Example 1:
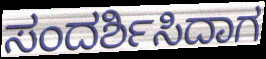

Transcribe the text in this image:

ಸಂದರ್ಶಿಸಿದಾಗ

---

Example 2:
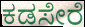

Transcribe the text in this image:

ಕಡಸೇರೆ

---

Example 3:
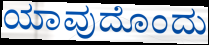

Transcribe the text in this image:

ಯಾವುದೊಂದು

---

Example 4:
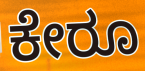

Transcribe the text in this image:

ಕೇರೂ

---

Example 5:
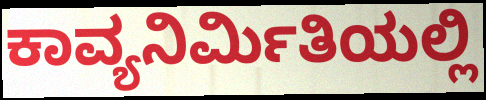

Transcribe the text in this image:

ಕಾವ್ಯನಿರ್ಮಿತಿಯಲ್ಲಿ